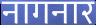
नागनार